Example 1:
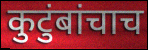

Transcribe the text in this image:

कुटुंबांचाच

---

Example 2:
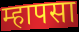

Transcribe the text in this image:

म्हापसा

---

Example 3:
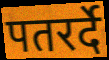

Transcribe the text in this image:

पतरर्दे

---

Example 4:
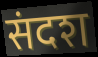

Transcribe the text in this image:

संदश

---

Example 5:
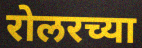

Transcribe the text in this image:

रोलरच्या